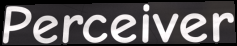
Perceiver